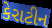
કેરાટીન